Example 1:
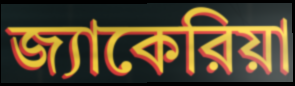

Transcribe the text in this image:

জ্যাকেরিয়া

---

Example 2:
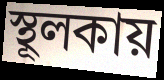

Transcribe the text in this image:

স্থূলকায়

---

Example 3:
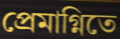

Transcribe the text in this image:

প্রেমাগ্নিতে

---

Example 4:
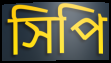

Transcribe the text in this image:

সিপি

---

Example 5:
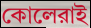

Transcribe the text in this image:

কোলেরাই